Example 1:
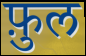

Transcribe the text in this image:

फ़ुल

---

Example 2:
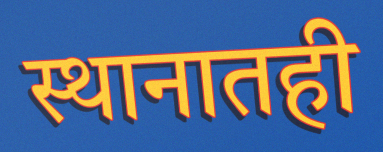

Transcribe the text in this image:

स्थानातही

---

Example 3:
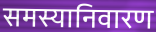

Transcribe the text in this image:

समस्यानिवारण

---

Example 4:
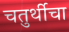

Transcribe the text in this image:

चतुर्थीचा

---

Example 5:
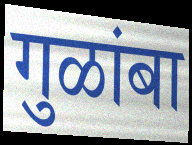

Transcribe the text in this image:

गुळांबा